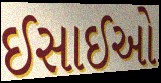
ઈસાઈઓ